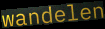
wandelen